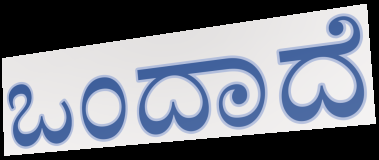
ಒಂದಾದೆ